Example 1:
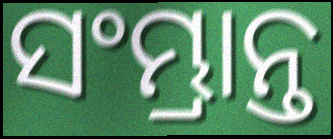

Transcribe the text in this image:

ସଂମ୍ଭ୍ରାନ୍ତ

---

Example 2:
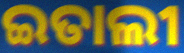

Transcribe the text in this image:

ଇତାଲୀ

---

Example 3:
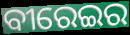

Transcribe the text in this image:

ବୀରେଇର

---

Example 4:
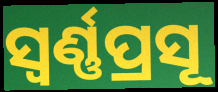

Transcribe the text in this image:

ସ୍ଵର୍ଣ୍ଣପ୍ରସୂ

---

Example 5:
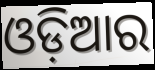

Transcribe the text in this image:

ଓଡ଼ିଆର